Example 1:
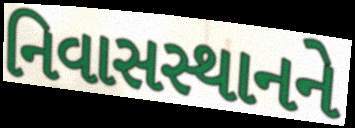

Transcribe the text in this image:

નિવાસસ્થાનને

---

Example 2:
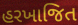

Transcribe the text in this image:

હરખાજિત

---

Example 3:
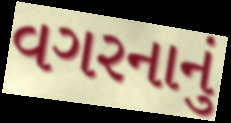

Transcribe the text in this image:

વગરનાનું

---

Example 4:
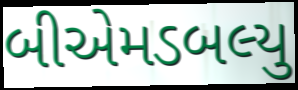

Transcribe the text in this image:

બીએમડબલ્યુ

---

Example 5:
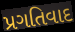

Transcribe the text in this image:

પ્રગતિવાદ